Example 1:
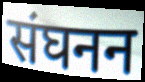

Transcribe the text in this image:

संघनन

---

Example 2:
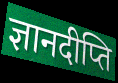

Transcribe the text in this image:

ज्ञानदीप्ति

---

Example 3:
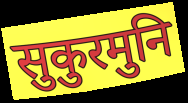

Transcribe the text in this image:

सुकुरमुनि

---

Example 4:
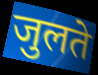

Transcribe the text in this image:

जुलते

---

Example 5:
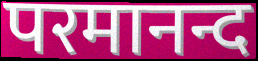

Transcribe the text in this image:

परमानन्‍द